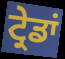
ਟ੍ਰੇਡਾਂ